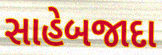
સાહેબજાદા